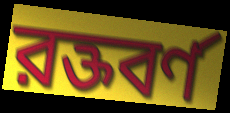
রক্তবর্ণ